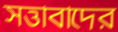
সত্তাবাদের